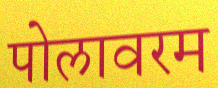
पोलावरम